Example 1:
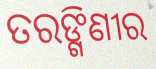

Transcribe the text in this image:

ତରଙ୍ଗିଣୀର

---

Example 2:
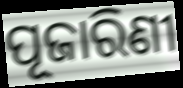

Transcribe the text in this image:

ପୂଜାରିଣୀ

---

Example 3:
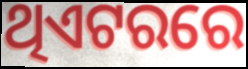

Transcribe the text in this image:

ଥିଏଟରରେ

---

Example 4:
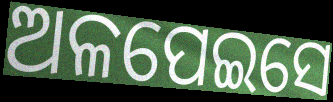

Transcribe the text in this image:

ଅଳପେଇସେ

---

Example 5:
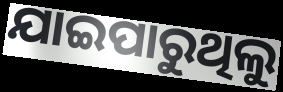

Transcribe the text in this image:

ଯାଇପାରୁଥିଲୁ